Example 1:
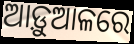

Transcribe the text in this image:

ଆଡ଼ୁଆଳରେ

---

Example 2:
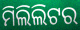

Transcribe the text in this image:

ମିଲିଲିଟର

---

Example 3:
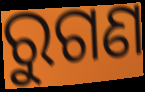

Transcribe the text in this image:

ରୁଗଣ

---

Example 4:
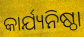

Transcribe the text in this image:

କାର୍ଯ୍ୟନିଷ୍ଠା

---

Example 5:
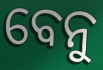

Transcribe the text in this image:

ବେନୁ